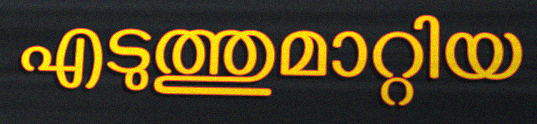
എടുത്തുമാറ്റിയ